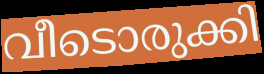
വീടൊരുക്കി